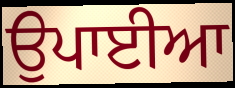
ਉਪਾਈਆ